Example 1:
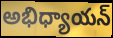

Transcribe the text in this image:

అభిధ్యాయన్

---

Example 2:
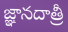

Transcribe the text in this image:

జ్ఞానదాత్రీ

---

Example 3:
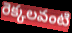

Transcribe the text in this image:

రెక్కలవంటి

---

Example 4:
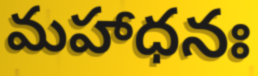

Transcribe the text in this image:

మహాధనః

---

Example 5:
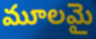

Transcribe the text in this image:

మూలమై